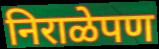
निराळेपण